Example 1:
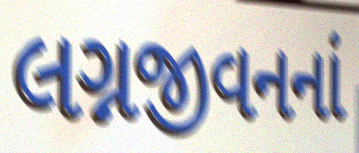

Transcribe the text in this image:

લગ્નજીવનનાં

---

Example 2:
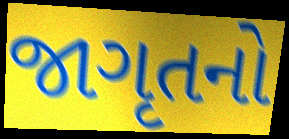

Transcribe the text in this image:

જાગૃતનો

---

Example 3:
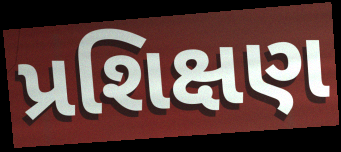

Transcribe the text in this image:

પ્રશિક્ષણ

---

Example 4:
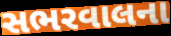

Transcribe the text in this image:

સભરવાલના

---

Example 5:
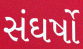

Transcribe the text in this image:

સંઘર્ષો